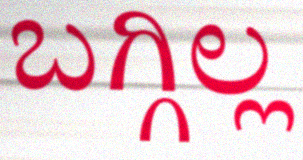
ಬಗ್ಗಿಲ್ಲ